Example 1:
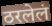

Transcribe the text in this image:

ठरलेलं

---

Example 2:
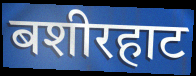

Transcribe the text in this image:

बशीरहाट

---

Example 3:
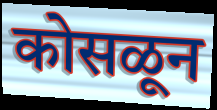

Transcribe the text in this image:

कोसळून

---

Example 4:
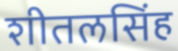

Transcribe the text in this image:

शीतलसिंह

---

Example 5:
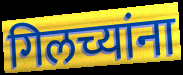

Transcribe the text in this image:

गिलच्यांना